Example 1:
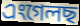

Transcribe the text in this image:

এংগেলছ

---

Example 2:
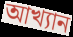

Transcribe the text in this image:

আখ্যান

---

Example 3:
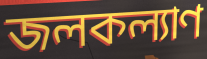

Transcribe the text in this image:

জলকল্যাণ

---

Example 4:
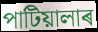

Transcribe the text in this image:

পাটিয়ালাৰ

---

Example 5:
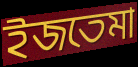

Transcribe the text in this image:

ইজতেমা